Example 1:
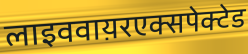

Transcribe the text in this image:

लाइववाय़रएक्सपेक्टेड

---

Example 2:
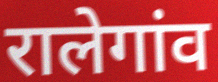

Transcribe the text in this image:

रालेगांव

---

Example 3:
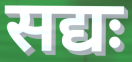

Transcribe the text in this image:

सद्यः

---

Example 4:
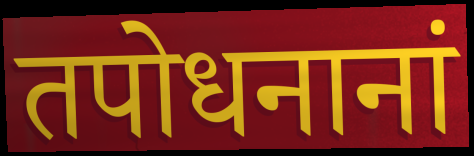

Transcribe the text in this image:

तपोधनानां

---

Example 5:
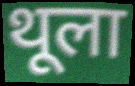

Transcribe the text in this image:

थूला